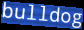
bulldog